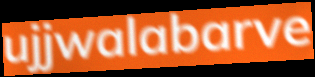
ujjwalabarve